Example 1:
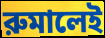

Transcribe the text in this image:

রুমালেই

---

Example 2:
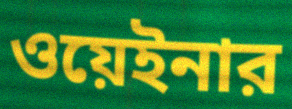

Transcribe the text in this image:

ওয়েইনার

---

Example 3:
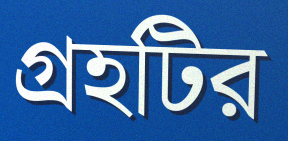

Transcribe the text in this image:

গ্রহটির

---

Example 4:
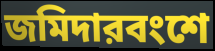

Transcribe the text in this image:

জমিদারবংশে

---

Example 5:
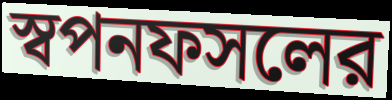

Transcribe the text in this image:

স্বপনফসলের